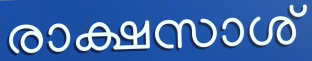
രാക്ഷസാശ്